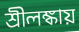
শ্রীলঙ্কায়